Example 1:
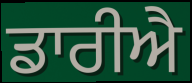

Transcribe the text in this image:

ਡਾਰੀਐ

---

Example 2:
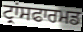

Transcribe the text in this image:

ਟ੍ਰਾਂਸਫਾਰਮਡ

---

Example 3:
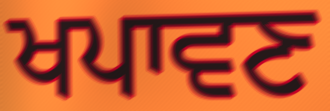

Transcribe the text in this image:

ਖਪਾਵਣ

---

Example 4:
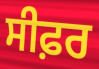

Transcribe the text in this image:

ਸੀਫ਼ਰ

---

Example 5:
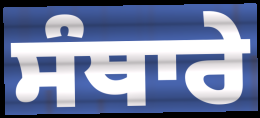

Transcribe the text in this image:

ਸੰਥਾਰੇ